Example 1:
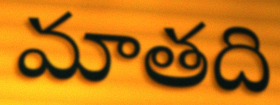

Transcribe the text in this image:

మాతది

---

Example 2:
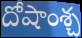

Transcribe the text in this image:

దోషాంశ్చ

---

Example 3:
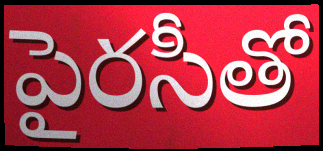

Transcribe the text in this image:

పైరసీతో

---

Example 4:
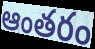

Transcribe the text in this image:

ఆంతరం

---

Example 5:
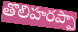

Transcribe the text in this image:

తొలిహరప్పా